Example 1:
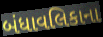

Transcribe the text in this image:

બંધાવલિકાના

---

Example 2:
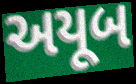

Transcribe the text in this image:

અયૂબ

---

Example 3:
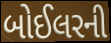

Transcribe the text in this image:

બોઈલરની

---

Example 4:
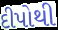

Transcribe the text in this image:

દીપોથી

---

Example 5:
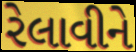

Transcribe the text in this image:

રેલાવીને